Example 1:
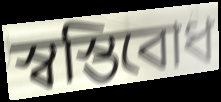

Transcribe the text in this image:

স্বস্তিবোধ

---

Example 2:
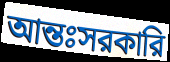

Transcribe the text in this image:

আন্তঃসরকারি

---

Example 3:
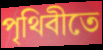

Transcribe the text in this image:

পৃথিবীতে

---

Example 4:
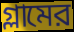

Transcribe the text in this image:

গ্লামের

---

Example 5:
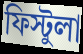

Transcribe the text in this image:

ফিস্টুলা